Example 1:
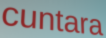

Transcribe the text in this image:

cuntara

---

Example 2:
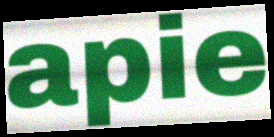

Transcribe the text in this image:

apie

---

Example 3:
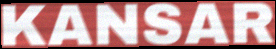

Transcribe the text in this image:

KANSAR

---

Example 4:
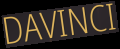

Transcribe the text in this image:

DAVINCI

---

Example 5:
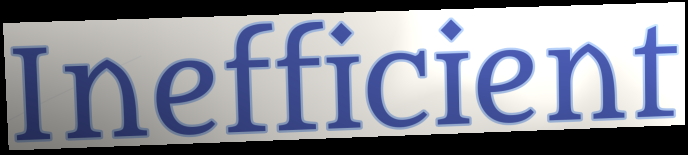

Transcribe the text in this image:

Inefficient